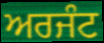
ਅਰਜੰਟ